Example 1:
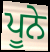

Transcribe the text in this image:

ਪੂਨੇ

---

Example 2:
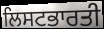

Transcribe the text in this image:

ਲਿਸਟਭਾਰਤੀ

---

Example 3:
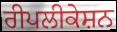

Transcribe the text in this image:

ਰੀਪਲੀਕੇਸ਼ਨ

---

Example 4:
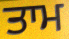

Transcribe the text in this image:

ਤਾਮ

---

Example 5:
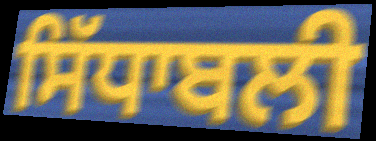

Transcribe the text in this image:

ਸਿੱਧਾਬਲੀ